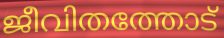
ജീവിതത്തോട്